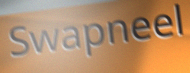
Swapneel